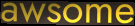
awsome